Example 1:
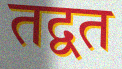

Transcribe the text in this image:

तद्वत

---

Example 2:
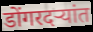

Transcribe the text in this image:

डोंगरदऱ्यांत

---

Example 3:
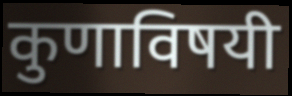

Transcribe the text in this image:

कुणाविषयी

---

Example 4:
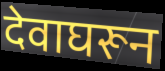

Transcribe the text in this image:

देवाघरून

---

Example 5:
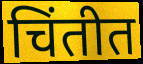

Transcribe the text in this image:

चिंतीत